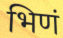
भिणं